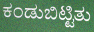
ಕಂಡುಬಿಟ್ಟಿತು